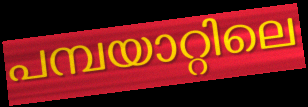
പമ്പയാറ്റിലെ